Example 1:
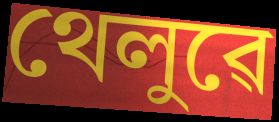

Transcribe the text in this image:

থেলুৱে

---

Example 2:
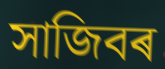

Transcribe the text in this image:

সাজিবৰ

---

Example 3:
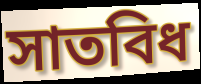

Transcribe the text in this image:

সাতবিধ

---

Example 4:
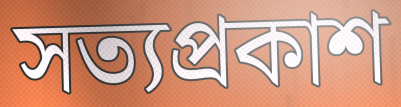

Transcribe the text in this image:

সত্যপ্ৰকাশ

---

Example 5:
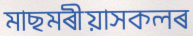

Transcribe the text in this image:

মাছমৰীয়াসকলৰ